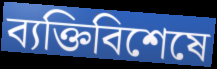
ব্যক্তিবিশেষে